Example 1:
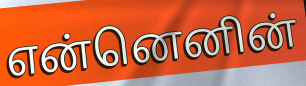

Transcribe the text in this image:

என்னெனின்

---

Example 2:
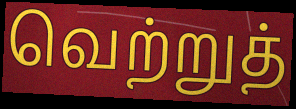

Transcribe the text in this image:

வெற்றுத்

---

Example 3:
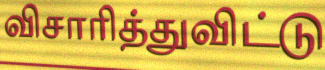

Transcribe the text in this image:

விசாரித்துவிட்டு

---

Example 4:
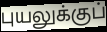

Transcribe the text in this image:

புயலுக்குப்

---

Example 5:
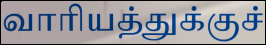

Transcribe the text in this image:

வாரியத்துக்குச்